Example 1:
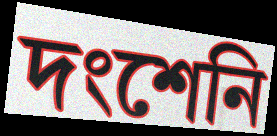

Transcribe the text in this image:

দংশেনি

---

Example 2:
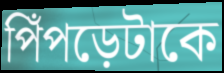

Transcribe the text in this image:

পিঁপড়েটাকে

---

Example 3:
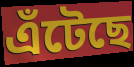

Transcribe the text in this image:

এঁটেছে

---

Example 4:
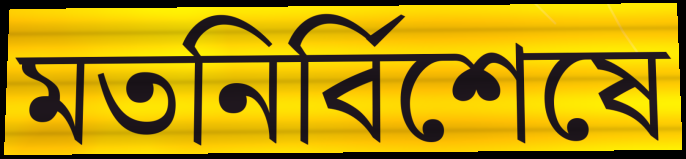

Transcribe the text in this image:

মতনির্বিশেষে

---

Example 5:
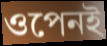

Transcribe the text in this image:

ওপেনই